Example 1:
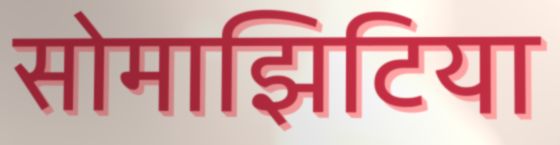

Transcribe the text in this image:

सोमाझिटिया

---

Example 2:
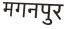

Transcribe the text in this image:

मगनपुर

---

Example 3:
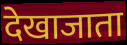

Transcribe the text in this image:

देखाजाता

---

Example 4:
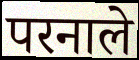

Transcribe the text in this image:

परनाले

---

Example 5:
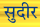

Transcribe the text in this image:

सुदीर